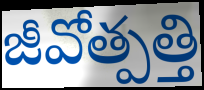
జీవోత్పత్తి